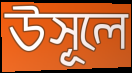
উসূলে